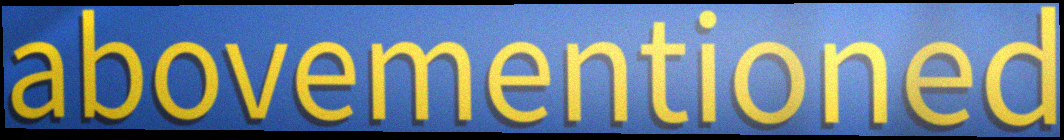
abovementioned